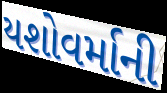
યશોવર્માની